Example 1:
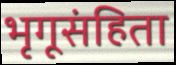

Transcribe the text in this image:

भृगूसंहिता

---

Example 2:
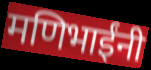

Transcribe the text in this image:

मणिभाईंनी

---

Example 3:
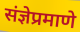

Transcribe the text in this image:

संज्ञेप्रमाणे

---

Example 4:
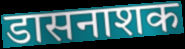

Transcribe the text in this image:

डासनाशक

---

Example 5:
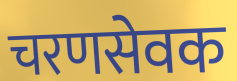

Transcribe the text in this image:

चरणसेवक